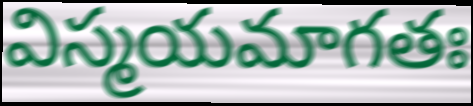
విస్మయమాగతః